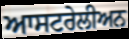
ਆਸਟਰੇਲੀਅਨ